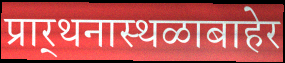
प्रार्थनास्थळाबाहेर